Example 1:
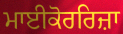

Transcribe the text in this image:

ਮਾਈਕੋਰਰਿਜ਼ਾ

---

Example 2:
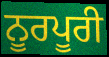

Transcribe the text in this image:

ਨੂਰਪੂਰੀ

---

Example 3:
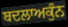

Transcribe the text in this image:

ਬਦਲਾਅਕੁੰਨ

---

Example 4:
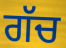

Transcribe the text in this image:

ਗੱਚ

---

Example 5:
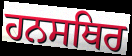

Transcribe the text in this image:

ਹਨਸਥਿਰ